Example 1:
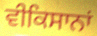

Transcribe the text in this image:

ਵੀਕਿਸਾਨਾਂ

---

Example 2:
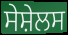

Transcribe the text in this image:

ਸੇਸ਼ੇਲਸ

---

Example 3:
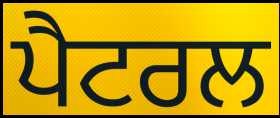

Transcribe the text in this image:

ਪੈਟਰਲ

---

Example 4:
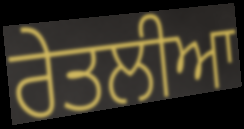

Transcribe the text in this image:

ਰੇਤਲੀਆ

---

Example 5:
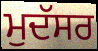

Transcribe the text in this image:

ਮੁਦੱਸਰ